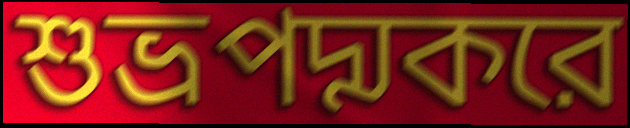
শুভ্রপদ্মকরে